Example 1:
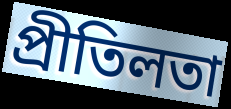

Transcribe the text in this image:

প্রীতিলতা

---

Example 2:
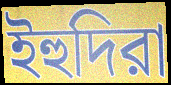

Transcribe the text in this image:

ইহুদিরা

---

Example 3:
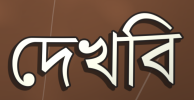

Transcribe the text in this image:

দেখবি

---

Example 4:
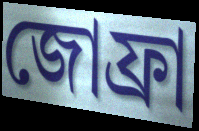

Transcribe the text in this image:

জোফ্রা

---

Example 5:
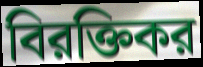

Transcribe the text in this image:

বিরক্তিকর